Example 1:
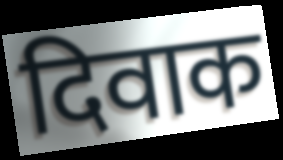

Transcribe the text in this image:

दिवाक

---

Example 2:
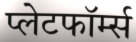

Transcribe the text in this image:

प्लेटफॉर्म्स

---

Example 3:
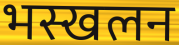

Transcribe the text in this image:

भस्खलन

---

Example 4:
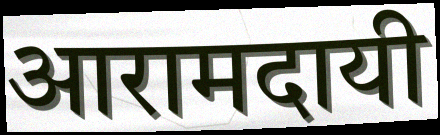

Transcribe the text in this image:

आरामदायी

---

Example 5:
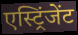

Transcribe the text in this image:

एस्ट्रिंजेंट